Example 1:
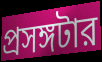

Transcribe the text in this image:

প্রসঙ্গটার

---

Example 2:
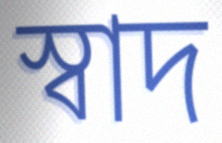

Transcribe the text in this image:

স্বাদ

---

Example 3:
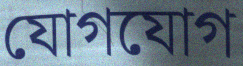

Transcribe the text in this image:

যোগযোগ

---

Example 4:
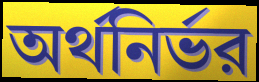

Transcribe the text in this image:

অর্থনির্ভর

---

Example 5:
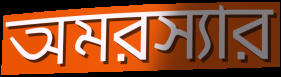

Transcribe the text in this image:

অমরস্যার